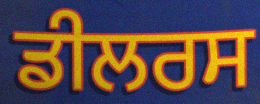
ਡੀਲਰਸ